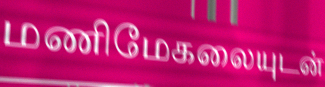
மணிமேகலையுடன்